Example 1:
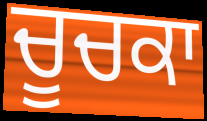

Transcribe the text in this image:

ਚੂਚਕਾ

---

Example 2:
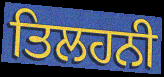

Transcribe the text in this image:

ਤਿਲਹਨੀ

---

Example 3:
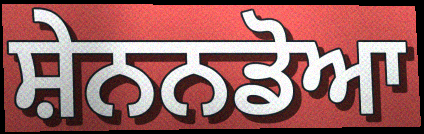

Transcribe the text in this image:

ਸ਼ੇਨਨਡੋਆ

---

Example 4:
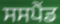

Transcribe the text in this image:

ਸਸਪੈੰਡ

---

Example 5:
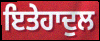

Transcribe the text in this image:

ਇਤੇਹਾਦੁਲ